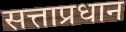
सत्ताप्रधान